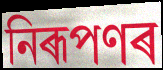
নিৰূপণৰ